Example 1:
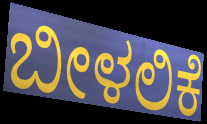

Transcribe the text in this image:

ಬೀಳಲಿಕೆ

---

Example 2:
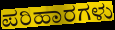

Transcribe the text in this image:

ಪರಿಹಾರಗಳು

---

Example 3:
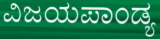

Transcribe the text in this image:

ವಿಜಯಪಾಂಡ್ಯ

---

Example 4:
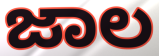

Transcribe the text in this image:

ಜಾಲ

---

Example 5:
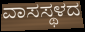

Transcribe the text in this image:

ವಾಸಸ್ಥಳದ